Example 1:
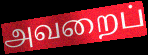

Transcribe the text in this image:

அவறைப்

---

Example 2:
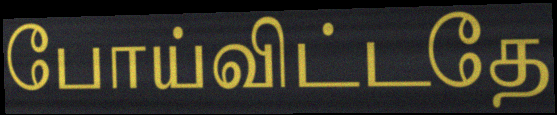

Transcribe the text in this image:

போய்விட்டதே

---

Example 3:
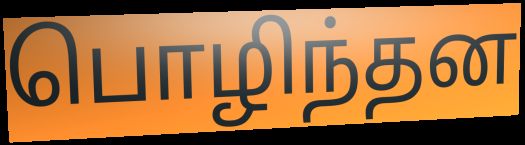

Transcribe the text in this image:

பொழிந்தன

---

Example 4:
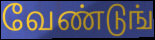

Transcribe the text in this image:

வேண்டுங்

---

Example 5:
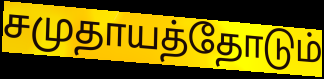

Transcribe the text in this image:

சமுதாயத்தோடும்